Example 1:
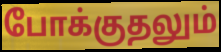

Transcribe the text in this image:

போக்குதலும்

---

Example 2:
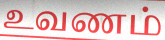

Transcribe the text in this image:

உவணம்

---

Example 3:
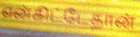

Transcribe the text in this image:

என்கிட்டேதான்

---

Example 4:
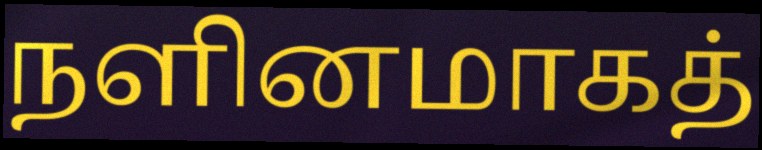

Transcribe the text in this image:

நளினமாகத்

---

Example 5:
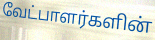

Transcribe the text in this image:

வேட்பாளர்களின்